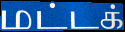
மட்டக்